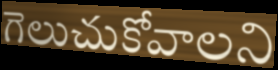
గెలుచుకోవాలని